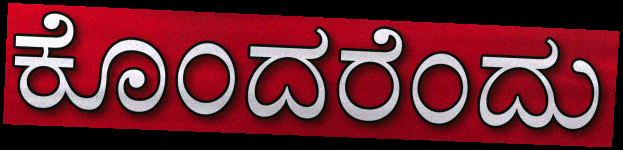
ಕೊಂದರೆಂದು